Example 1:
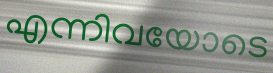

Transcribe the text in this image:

എന്നിവയോടെ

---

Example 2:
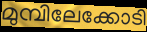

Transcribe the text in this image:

മുമ്പിലേക്കോടി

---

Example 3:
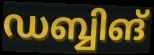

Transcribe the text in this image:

ഡബ്ബിങ്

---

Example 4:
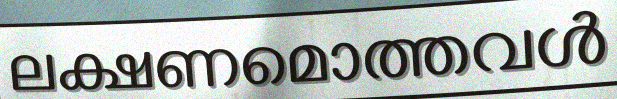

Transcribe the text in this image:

ലക്ഷണമൊത്തവൾ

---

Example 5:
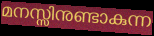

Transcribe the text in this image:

മനസ്സിനുണ്ടാകുന്ന